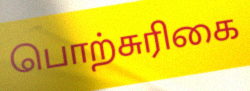
பொற்சுரிகை